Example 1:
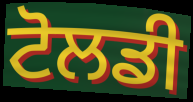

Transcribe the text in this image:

ਟੋਲਡੀ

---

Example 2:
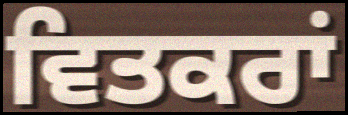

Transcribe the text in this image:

ਵਿਤਕਰਾਂ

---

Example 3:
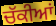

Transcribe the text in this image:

ਚੱਕੀਆਂ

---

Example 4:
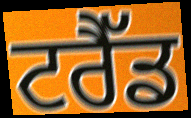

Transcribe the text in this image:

ਟਰੈੱਡ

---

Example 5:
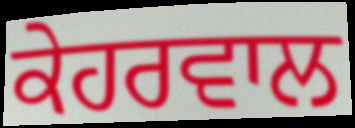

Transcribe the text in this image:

ਕੇਹਰਵਾਲ